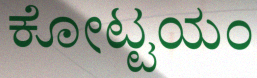
ಕೋಟ್ಟಯಂ